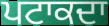
ਪਟਾਕਦਾ